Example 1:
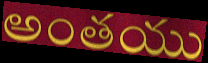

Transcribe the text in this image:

అంతయు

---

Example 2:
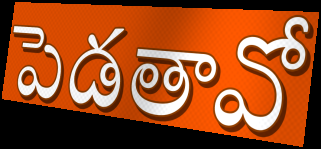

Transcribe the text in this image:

పెడతావో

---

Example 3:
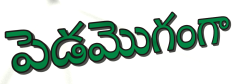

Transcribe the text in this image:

పెడమొగంగా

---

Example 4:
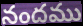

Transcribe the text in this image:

నందము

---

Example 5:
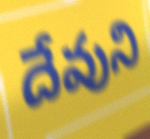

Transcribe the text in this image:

దేవుని